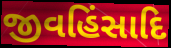
જીવહિંસાદિ